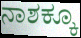
ನಾಶಕ್ಕೂ